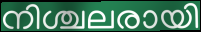
നിശ്ചലരായി